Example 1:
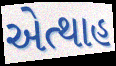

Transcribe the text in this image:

એત્થાહ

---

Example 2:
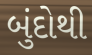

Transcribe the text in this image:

બુંદોથી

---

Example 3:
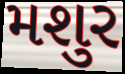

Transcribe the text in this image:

મશુર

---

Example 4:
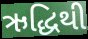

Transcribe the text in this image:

ઋદ્ધિથી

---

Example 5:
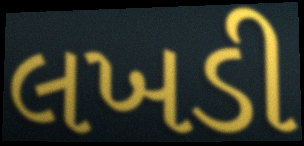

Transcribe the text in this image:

લખડી